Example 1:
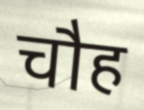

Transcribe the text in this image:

चौह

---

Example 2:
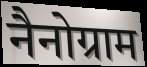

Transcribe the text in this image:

नैनोग्राम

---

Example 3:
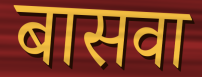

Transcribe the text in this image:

बासवा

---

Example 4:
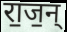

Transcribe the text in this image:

रा॒ज॒न्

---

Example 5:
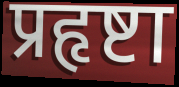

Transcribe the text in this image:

प्रहृष्टा